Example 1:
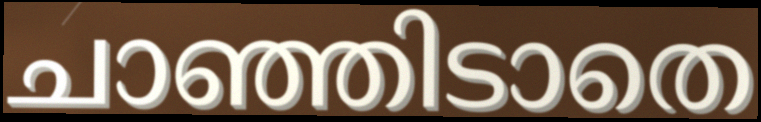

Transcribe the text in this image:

ചാഞ്ഞിടാതെ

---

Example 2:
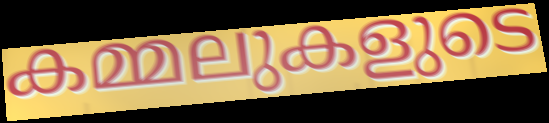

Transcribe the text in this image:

കമ്മലുകളുടെ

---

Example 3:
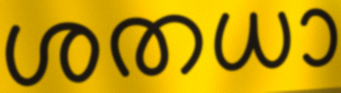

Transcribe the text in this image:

ശതധാ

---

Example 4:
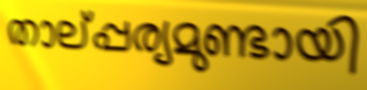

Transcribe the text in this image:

താല്പ്പര്യമുണ്ടായി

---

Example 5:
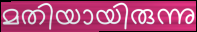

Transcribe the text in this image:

മതിയായിരുന്നു